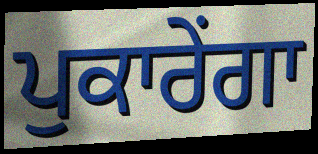
ਪੁਕਾਰੇਂਗਾ